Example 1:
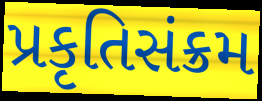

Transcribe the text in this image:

પ્રકૃતિસંક્રમ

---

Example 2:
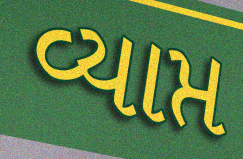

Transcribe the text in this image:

વ્યાપ્ત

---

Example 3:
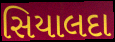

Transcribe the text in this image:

સિયાલદા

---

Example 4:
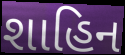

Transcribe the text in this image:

શાહિન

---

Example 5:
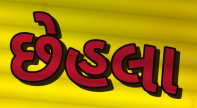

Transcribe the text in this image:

છેહલા